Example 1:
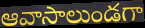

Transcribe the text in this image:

ఆవాసాలుండగా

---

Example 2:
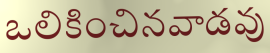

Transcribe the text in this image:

ఒలికించినవాడవు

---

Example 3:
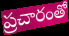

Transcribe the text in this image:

ప్రచారంతో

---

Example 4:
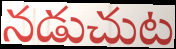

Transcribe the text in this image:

నడుచుట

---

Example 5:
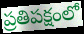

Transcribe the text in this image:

ప్రతిపక్షంలో